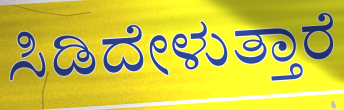
ಸಿಡಿದೇಳುತ್ತಾರೆ